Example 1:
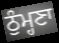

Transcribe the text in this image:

ਠੁੰਮ੍ਹਣਾ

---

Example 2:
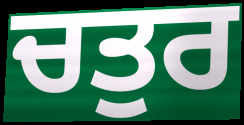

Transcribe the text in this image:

ਚਤੁਰ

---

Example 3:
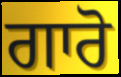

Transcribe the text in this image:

ਗਾਰੋ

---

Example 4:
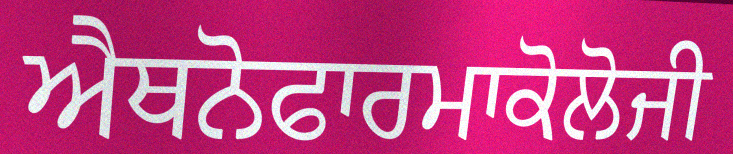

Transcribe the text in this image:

ਐਥਨੋਫਾਰਮਾਕੋਲੋਜੀ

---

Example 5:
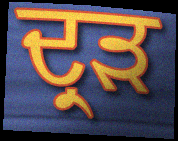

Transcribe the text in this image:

ਦ੍ਰੜ